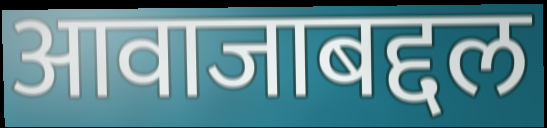
आवाजाबद्दल